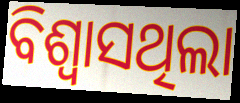
ବିଶ୍ୱାସଥିଲା